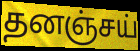
தனஞ்சய்